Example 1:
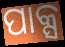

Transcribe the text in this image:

ପାକ୍ସ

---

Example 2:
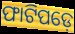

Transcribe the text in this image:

ଫାଟିପଡ଼େ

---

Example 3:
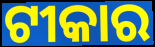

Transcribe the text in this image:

ଟୀକାର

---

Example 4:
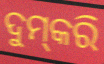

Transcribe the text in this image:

ଦୁମ୍‍କରି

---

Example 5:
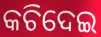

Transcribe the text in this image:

କଚିଦେଇ